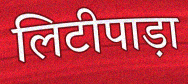
लिटीपाड़ा